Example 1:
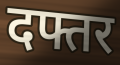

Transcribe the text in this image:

दफ्तर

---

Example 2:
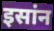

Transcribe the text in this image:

इसांन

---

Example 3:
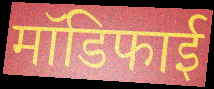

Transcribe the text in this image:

मॉडिफाई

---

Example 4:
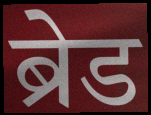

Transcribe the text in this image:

ब्रेड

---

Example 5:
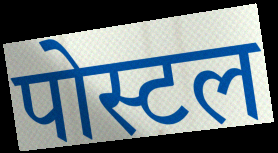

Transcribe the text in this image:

पोस्टल